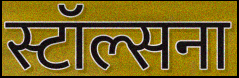
स्टॉल्सना